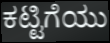
ಕಟ್ಟಿಗೆಯು